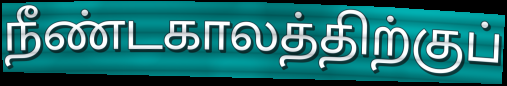
நீண்டகாலத்திற்குப்